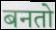
बनतो